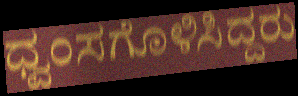
ಧ್ವಂಸಗೊಳಿಸಿದ್ದರು